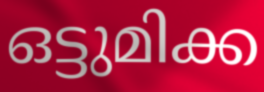
ഒട്ടുമിക്ക